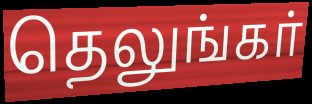
தெலுங்கர்